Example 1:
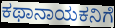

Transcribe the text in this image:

ಕಥಾನಾಯಕನಿಗೆ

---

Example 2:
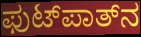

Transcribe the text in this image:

ಫುಟ್‌ಪಾತ್‌ನ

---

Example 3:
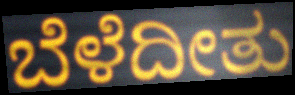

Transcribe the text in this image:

ಬೆಳೆದೀತು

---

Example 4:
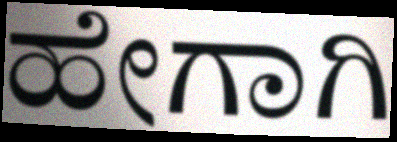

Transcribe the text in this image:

ಹೇಗಾಗಿ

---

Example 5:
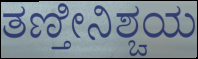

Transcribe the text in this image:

ತಣ್ತೀನಿಶ್ಚಯ